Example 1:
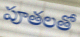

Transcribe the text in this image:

పూతలతో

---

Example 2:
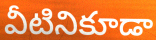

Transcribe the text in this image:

వీటినికూడా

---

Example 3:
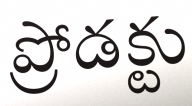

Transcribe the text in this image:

ప్రోడక్టు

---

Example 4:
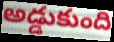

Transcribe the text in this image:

అడ్డుకుంది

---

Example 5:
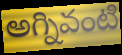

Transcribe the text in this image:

అగ్నివంటి